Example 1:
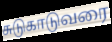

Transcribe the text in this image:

சுடுகாடுவரை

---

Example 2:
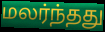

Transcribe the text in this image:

மலர்ந்தது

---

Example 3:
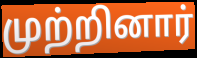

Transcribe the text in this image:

முற்றினார்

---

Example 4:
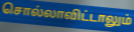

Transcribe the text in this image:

சொல்லாவிட்டாலும்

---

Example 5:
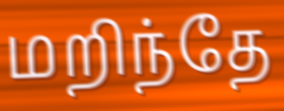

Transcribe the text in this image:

மறிந்தே